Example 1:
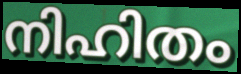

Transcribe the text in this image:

നിഹിതം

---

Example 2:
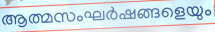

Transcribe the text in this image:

ആത്മസംഘർഷങ്ങളെയും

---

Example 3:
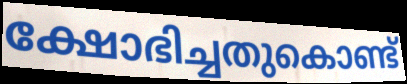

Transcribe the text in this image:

ക്ഷോഭിച്ചതുകൊണ്ട്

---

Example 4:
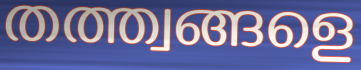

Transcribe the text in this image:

തത്ത്വങ്ങളെ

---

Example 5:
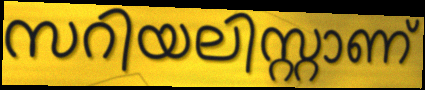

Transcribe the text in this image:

സറിയലിസ്റ്റാണ്